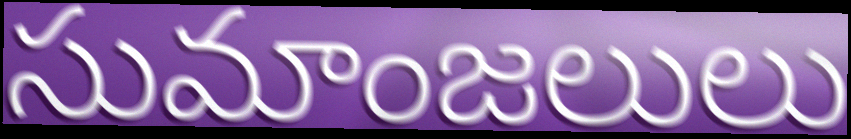
సుమాంజలులు